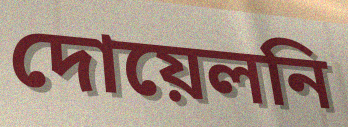
দোয়েলনি